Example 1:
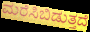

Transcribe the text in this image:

ಮರೆಸಿಬಿಡುತ್ತದೆ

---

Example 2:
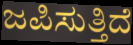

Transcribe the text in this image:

ಜಪಿಸುತ್ತಿದೆ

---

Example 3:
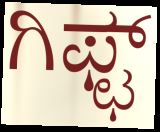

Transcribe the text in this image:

ಗಿಫ್ಟ್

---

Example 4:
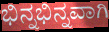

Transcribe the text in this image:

ಭಿನ್ನಭಿನ್ನವಾಗಿ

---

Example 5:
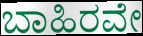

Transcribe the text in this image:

ಬಾಹಿರವೇ